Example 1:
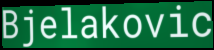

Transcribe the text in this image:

Bjelakovic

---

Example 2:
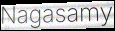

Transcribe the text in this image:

Nagasamy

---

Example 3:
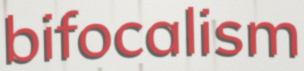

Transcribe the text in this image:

bifocalism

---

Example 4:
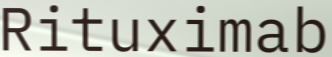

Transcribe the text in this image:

Rituximab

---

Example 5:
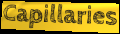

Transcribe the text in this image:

Capillaries